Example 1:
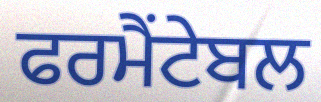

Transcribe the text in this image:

ਫਰਮੈਂਟੇਬਲ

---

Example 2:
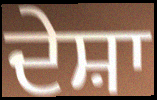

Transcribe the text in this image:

ਦੇਸ਼ਾ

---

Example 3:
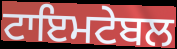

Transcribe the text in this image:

ਟਾਇਮਟੇਬਲ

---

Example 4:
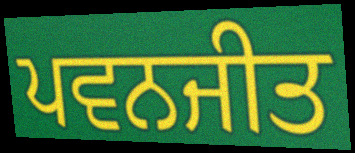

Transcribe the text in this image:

ਪਵਨਜੀਤ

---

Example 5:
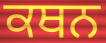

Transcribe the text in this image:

ਕਥਨ